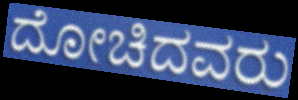
ದೋಚಿದವರು